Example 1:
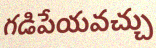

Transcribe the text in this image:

గడిపేయవచ్చు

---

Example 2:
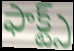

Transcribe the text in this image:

ఫాక్ట్స్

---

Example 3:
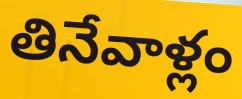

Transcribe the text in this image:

తినేవాళ్లం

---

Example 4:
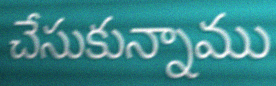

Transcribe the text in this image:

చేసుకున్నాము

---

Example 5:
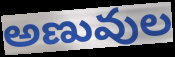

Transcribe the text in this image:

అణువుల